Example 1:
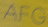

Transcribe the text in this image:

AFG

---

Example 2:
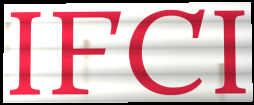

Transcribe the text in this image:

IFCI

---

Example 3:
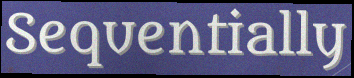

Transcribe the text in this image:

Sequentially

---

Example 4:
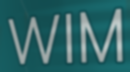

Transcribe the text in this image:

WIM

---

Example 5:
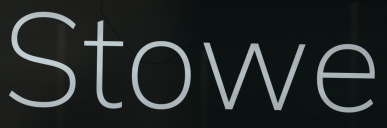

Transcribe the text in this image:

Stowe